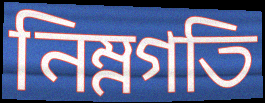
নিম্নগতি